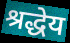
श्रद्धेय